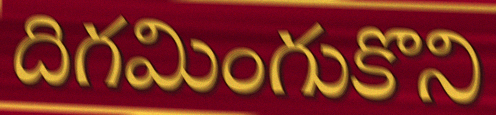
దిగమింగుకొని